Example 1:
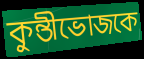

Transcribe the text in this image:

কুন্তীভোজকে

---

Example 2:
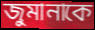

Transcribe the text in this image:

জুমানাকে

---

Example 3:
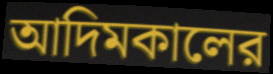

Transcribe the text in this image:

আদিমকালের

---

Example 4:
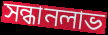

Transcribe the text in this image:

সন্ধানলাভ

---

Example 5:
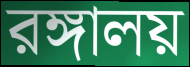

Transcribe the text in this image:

রঙ্গালয়